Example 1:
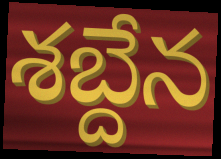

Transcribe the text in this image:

శబ్దేన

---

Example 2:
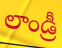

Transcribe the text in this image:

లాండ్రీ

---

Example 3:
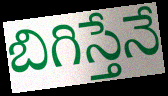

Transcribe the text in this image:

బిగిస్తేనే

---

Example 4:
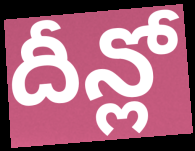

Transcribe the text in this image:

దీన్లో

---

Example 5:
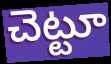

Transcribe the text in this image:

చెట్టూ